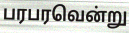
பரபரவென்று